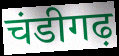
चंडीगढ़